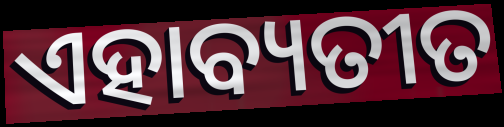
ଏହାବ୍ୟତୀତ